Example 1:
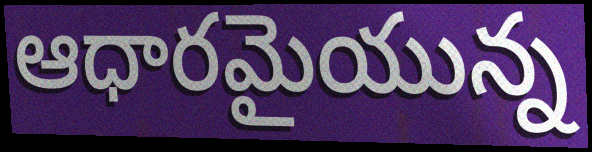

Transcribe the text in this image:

ఆధారమైయున్న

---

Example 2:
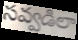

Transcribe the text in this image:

సవ్వడిలా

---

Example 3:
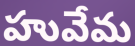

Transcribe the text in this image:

హువేమ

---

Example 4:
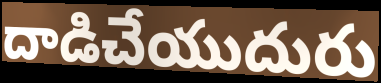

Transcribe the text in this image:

దాడిచేయుదురు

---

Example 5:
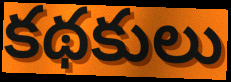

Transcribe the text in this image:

కథకులు